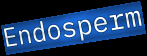
Endosperm